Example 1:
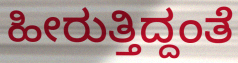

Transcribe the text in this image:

ಹೀರುತ್ತಿದ್ದಂತೆ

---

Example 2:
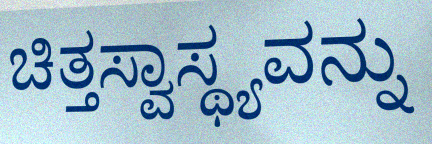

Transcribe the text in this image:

ಚಿತ್ತಸ್ವಾಸ್ಥ್ಯವನ್ನು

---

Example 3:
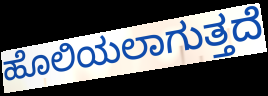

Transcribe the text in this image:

ಹೊಲಿಯಲಾಗುತ್ತದೆ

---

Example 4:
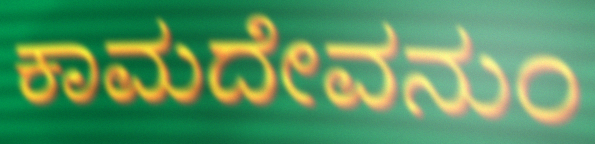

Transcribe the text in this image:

ಕಾಮದೇವನುಂ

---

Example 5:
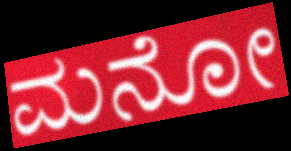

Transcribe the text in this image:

ಮನೋ